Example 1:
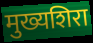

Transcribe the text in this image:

मुख्यशिरा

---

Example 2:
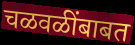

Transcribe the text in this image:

चळवळींबाबत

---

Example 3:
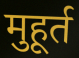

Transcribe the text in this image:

मुहूर्त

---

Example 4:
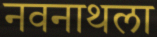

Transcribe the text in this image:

नवनाथला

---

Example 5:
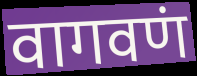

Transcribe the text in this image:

वागवणं